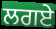
ਲਗਏ